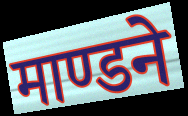
माण्डने